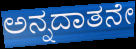
ಅನ್ನದಾತನೇ